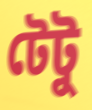
টেটু